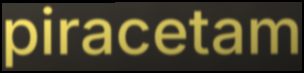
piracetam